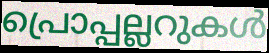
പ്രൊപ്പല്ലറുകൾ